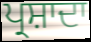
ਪ੍ਰਸ਼ਾਦਾ